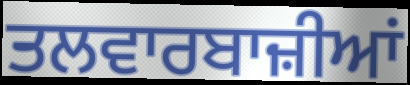
ਤਲਵਾਰਬਾਜ਼ੀਆਂ